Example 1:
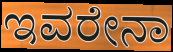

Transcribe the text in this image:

ಇವರೇನಾ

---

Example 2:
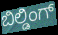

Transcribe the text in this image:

ಬಿಲ್ಡಿಂಗ್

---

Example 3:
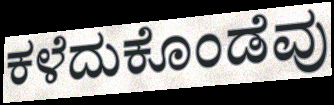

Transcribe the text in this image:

ಕಳೆದುಕೊಂಡೆವು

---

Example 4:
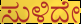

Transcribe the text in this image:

ಸುಳಿದೇ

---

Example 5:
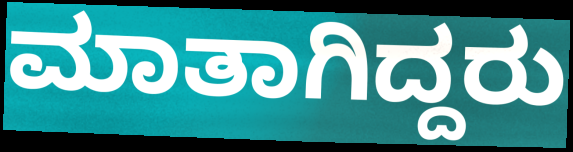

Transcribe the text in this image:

ಮಾತಾಗಿದ್ದರು